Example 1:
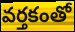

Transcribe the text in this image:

వర్తకంతో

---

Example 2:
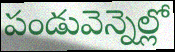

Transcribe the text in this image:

పండువెన్నెల్లో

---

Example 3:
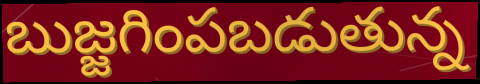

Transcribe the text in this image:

బుజ్జగింపబడుతున్న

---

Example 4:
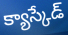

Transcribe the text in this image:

క్యాస్కేడ్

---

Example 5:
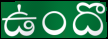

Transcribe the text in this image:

ఉందొ